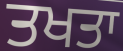
ਤਖਤਾ